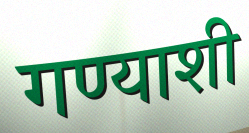
गण्याशी